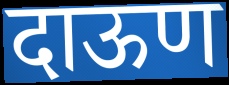
दाऊण